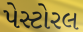
પેસ્ટોરલ